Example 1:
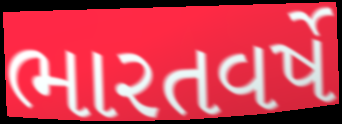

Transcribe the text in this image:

ભારતવર્ષે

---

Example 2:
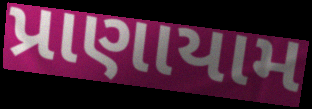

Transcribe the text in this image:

પ્રાણાયામ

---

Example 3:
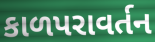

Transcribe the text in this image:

કાળપરાવર્તન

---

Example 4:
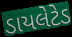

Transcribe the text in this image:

ડાયલેટેડ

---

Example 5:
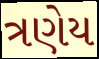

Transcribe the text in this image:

ત્રણેય